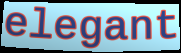
elegant